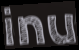
inu